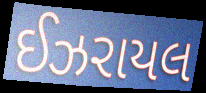
ઈઝરાયલ